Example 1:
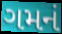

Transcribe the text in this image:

ગમનં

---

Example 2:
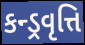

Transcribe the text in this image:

કન્ડ્રવૃત્તિ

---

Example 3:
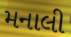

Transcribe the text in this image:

મનાલી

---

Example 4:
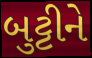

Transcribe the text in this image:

બુટ્ટીને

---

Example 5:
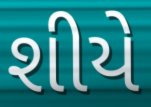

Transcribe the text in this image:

શીયે